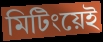
মিটিংয়েই